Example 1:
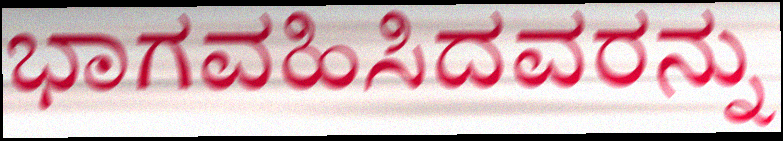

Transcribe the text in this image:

ಭಾಗವಹಿಸಿದವರನ್ನು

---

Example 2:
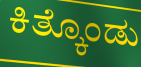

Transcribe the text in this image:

ಕಿತ್ಕೊಂಡು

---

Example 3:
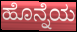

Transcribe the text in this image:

ಹೊನ್ನೆಯ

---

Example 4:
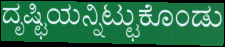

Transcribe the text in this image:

ದೃಷ್ಟಿಯನ್ನಿಟ್ಟುಕೊಂಡು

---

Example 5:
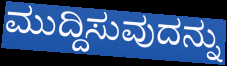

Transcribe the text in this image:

ಮುದ್ದಿಸುವುದನ್ನು